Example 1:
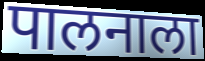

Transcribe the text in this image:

पालनाला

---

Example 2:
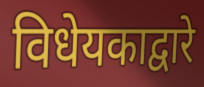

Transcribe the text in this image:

विधेयकाद्वारे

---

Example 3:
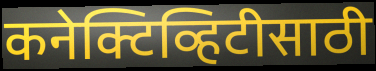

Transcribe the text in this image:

कनेक्टिव्हिटीसाठी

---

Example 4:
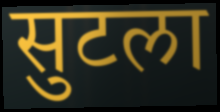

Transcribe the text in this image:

सुटला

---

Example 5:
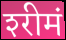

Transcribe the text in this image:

श्रीमं